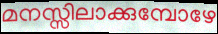
മനസ്സിലാക്കുമ്പോഴേ